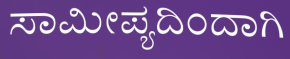
ಸಾಮೀಪ್ಯದಿಂದಾಗಿ